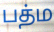
பத்ம